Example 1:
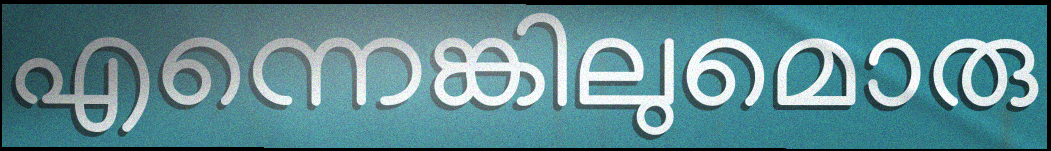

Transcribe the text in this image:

എന്നെങ്കിലുമൊരു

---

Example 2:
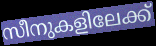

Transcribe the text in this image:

സീനുകളിലേക്ക്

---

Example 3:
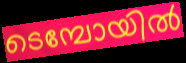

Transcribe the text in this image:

ടെമ്പോയിൽ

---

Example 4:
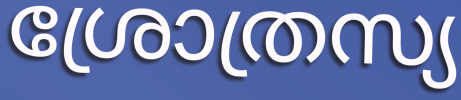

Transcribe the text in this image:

ശ്രോത്രസ്യ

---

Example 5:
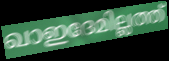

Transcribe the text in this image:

ഖാഇദേമില്ലത്ത്